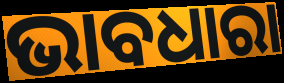
ଭାବଧାରା